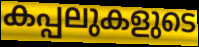
കപ്പലുകളുടെ